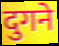
दुगने